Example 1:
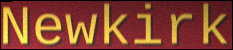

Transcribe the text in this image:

Newkirk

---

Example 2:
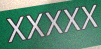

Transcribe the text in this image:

XXXXX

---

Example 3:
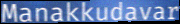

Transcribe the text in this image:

Manakkudavar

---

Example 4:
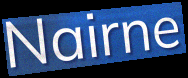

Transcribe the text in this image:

Nairne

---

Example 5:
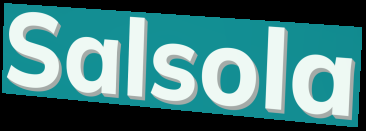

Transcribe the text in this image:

Salsola